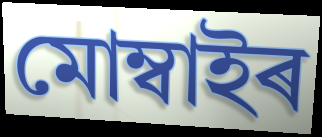
মোম্বাইৰ